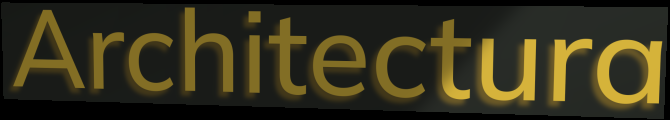
Architectura